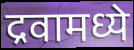
द्रवामध्ये